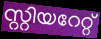
സ്റ്റിയറേറ്റ്